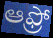
ఆఫ్రో